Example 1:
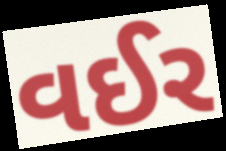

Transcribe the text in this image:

વઈર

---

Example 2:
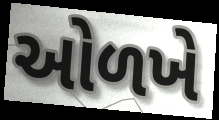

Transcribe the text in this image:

ઓળખે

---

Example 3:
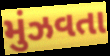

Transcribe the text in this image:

મુંઝવતા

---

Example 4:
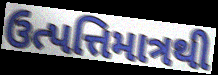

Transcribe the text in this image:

ઉત્પત્તિમાત્રથી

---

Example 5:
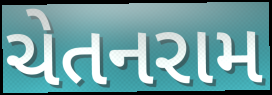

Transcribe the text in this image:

ચેતનરામ